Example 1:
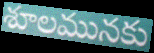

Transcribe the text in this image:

శూలమునకు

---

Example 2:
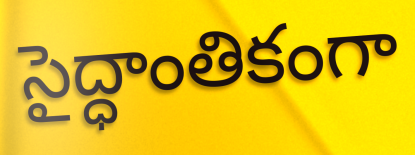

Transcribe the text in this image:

సైద్ధాంతికంగా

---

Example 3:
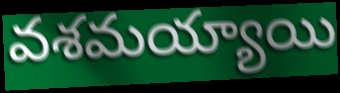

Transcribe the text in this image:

వశమయ్యాయి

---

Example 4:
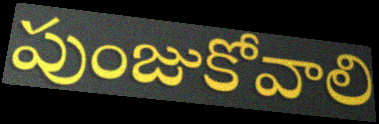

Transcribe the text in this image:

పుంజుకోవాలి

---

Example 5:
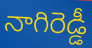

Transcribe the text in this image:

నాగిరెడ్డీ